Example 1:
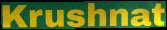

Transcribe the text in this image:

Krushnat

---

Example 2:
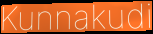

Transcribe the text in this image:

Kunnakudi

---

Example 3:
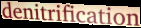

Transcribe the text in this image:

denitrification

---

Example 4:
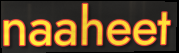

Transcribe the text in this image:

naaheet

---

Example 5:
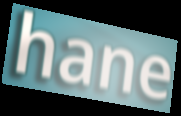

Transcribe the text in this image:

hane